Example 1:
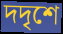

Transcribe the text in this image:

দদৃশে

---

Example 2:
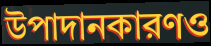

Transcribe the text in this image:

উপাদানকারণও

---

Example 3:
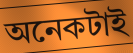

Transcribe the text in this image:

অনেকটাই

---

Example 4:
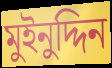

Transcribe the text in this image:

মুইনুদ্দিন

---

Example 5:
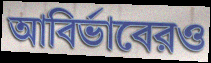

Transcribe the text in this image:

আবির্ভাবেরও